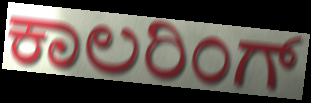
ಕಾಲರಿಂಗ್